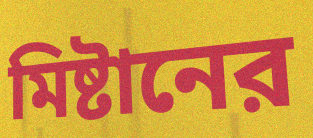
মিষ্টানের